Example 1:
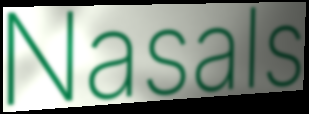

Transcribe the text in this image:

Nasals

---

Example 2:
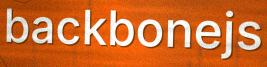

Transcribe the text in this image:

backbonejs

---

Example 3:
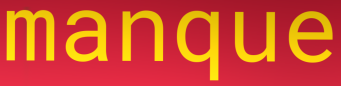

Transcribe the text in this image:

manque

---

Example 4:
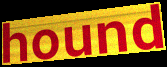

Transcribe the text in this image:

hound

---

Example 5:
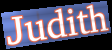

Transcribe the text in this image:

Judith